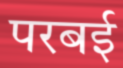
परबई